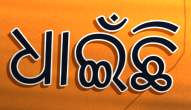
ଧାଇଁଛି